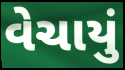
વેચાયું